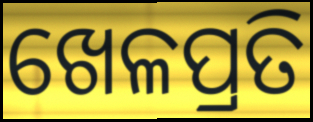
ଖେଳପ୍ରତି